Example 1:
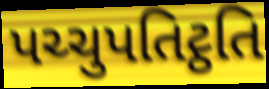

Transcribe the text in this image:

પચ્ચુપતિટ્ઠતિ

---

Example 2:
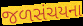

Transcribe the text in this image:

જળસંચયના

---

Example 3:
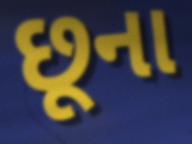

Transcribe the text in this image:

છૂના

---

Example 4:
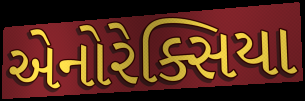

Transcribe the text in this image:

એનોરેક્સિયા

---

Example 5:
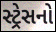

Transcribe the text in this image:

સ્ટ્રેસનો